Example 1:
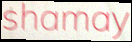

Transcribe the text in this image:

shamay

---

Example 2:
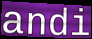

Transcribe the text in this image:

andi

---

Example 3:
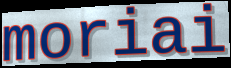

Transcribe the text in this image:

moriai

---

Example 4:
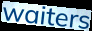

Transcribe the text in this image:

waiters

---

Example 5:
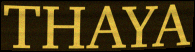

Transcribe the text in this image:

THAYA